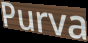
Purva